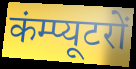
कंम्प्यूटरों